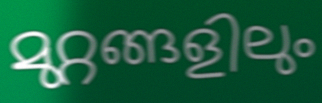
മുറ്റങ്ങളിലും